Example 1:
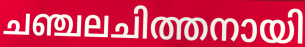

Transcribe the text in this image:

ചഞ്ചലചിത്തനായി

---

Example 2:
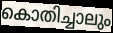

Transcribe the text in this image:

കൊതിച്ചാലും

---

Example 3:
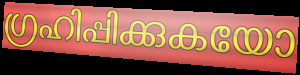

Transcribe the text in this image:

ഗ്രഹിപ്പിക്കുകയോ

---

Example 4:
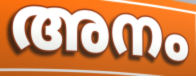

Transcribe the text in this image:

അനം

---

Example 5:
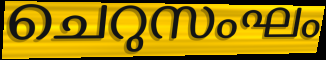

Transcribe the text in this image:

ചെറുസംഘം